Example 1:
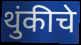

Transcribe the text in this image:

थुंकीचे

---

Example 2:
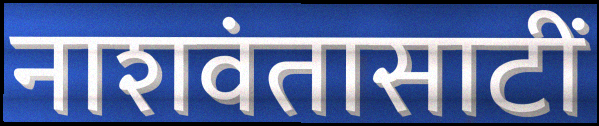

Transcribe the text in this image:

नाशवंतासाटीं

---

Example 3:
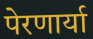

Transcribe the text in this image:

पेरणार्या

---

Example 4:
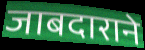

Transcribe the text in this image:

जाबदाराने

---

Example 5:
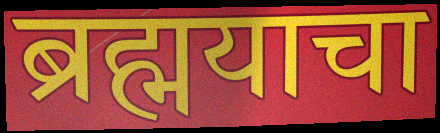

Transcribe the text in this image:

ब्रह्मयाचा